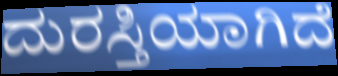
ದುರಸ್ತಿಯಾಗಿದೆ